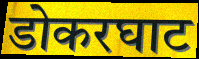
डोकरघाट